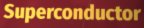
Superconductor